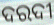
ଦରଦୀ